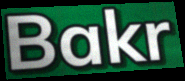
Bakr